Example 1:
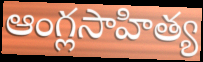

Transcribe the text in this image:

ఆంగ్లసాహిత్య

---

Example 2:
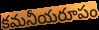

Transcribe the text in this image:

కమనీయరూపం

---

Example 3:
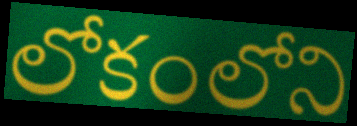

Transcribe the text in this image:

లోకంలోని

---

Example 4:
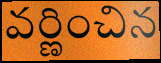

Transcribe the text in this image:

వర్ణించిన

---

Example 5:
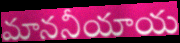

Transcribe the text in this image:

మాననీయాయ